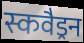
स्कवैड्रन